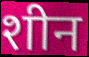
शीन